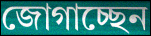
জোগাচ্ছেন